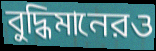
বুদ্ধিমানেরও